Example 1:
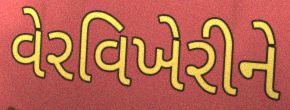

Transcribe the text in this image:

વેરવિખેરીને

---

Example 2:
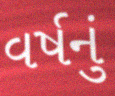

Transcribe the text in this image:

વર્ષનું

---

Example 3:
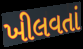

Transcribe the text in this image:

ખીલવતાં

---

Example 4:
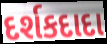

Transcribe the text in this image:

દર્શકદાદા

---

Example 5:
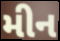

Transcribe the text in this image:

મીન